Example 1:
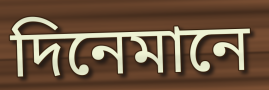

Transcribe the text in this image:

দিনেমানে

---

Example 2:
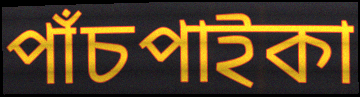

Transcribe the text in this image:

পাঁচপাইকা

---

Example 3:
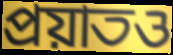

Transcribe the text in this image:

প্রয়াতও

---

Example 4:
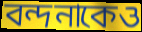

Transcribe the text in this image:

বন্দনাকেও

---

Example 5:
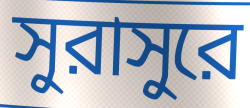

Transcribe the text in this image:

সুরাসুরে